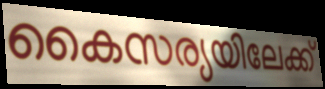
കൈസര്യയിലേക്ക്